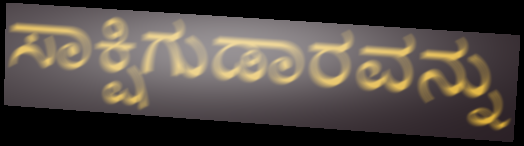
ಸಾಕ್ಷಿಗುಡಾರವನ್ನು